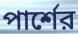
পার্শের